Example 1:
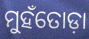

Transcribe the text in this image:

ମୁହଁତୋଡ଼ା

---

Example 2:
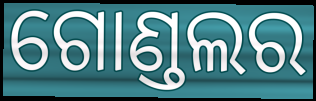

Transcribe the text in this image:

ଗୋଣ୍ଡଲର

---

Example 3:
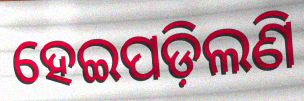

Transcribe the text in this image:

ହେଇପଡ଼ିଲଣି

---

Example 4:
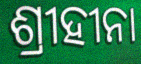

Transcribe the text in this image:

ଶ୍ରୀହୀନା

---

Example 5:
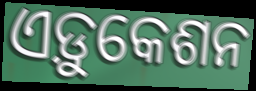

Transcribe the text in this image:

ଏଡ଼ୁକେଶନ